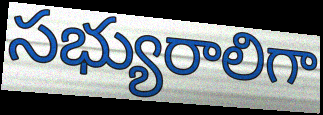
సభ్యురాలిగా